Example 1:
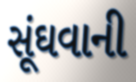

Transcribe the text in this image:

સૂંઘવાની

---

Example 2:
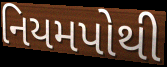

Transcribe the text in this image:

નિયમપોથી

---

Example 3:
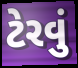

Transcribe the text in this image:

ટેરવું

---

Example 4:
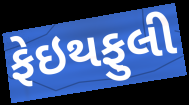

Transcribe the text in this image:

ફેઇથફુલી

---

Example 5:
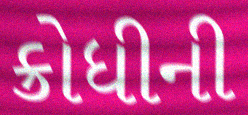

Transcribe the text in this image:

ક્રોધીની